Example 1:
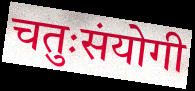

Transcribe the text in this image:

चतुःसंयोगी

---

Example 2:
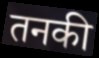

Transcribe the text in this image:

तनकी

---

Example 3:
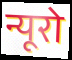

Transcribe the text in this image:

न्यूरो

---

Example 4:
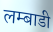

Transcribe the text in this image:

लम्बाडी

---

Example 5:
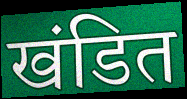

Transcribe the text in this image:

खंडित